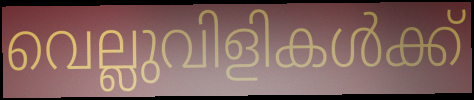
വെല്ലുവിളികൾക്ക്